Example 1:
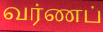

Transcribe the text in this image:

வர்ணப்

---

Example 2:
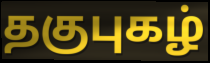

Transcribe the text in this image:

தகுபுகழ்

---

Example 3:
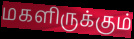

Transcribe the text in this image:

மகளிருக்கும்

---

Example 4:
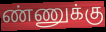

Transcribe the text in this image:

ண்ணுக்கு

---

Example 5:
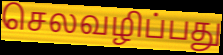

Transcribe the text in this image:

செலவழிப்பது